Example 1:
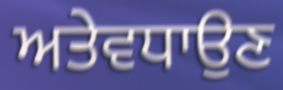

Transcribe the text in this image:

ਅਤੇਵਧਾਉਣ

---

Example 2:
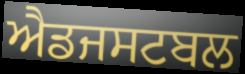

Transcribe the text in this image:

ਐਡਜਸਟਬਲ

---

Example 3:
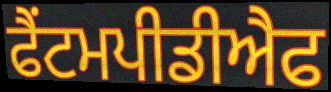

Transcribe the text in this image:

ਫੈਂਟਮਪੀਡੀਐਫ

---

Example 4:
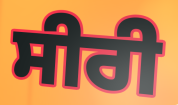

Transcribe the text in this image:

ਸੀਰੀ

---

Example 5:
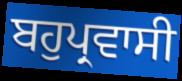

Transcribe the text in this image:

ਬਹੁਪ੍ਰਵਾਸੀ